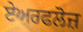
ਏਅਰਫਲੋਜ਼